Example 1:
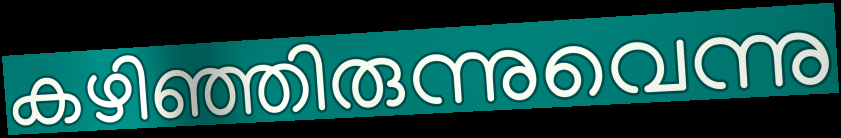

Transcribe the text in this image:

കഴിഞ്ഞിരുന്നുവെന്നു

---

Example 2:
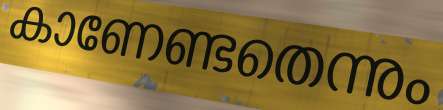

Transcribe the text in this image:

കാണേണ്ടതെന്നും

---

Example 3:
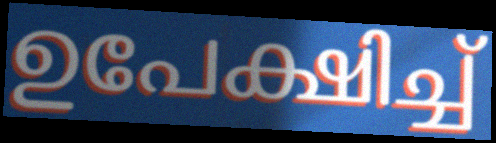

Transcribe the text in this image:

ഉപേക്ഷിച്ച്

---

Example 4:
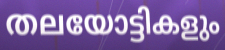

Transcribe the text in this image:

തലയോട്ടികളും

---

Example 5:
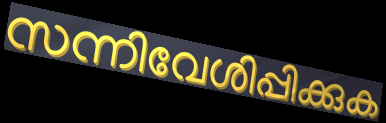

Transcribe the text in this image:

സന്നിവേശിപ്പിക്കുക